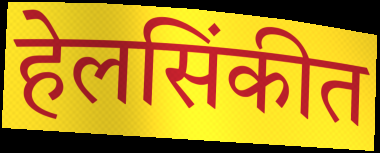
हेलसिंकीत